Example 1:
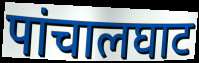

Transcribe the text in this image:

पांचालघाट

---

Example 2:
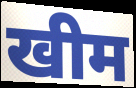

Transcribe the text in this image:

खीम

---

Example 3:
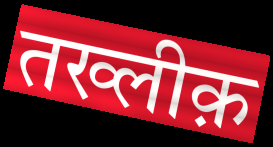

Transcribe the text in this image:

तख्लीक़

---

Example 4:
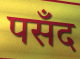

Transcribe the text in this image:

पसँद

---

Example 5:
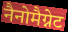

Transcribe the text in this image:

नैनोमैग्नेट